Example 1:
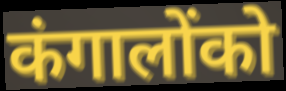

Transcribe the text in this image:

कंगालोंको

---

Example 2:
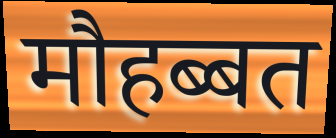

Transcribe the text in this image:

मौहब्बत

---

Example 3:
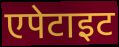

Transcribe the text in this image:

एपेटाइट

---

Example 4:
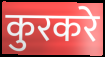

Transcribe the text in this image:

कुरकरे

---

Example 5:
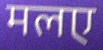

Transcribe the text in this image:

मलए